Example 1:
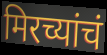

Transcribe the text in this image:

मिरच्यांचं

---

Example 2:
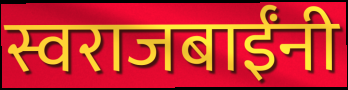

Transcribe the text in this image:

स्वराजबाईंनी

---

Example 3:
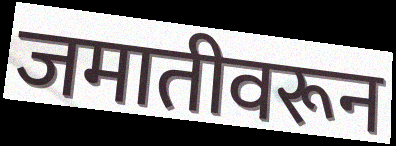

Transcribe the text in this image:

जमातीवरून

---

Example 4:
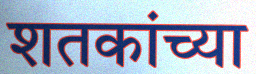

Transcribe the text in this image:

शतकांच्या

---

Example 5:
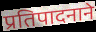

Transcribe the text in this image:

प्रतिपादनाने